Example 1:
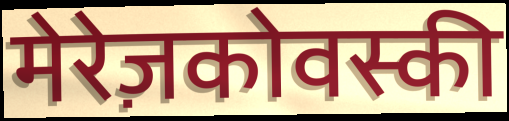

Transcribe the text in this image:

मेरेज़कोवस्की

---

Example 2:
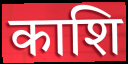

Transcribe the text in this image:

काशि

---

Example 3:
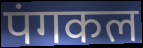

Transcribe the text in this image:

पंगकल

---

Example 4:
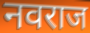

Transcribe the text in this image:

नवराज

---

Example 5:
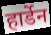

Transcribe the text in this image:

हार्डेन